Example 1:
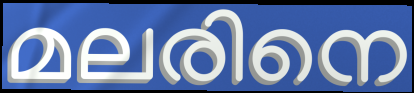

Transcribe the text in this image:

മലരിനെ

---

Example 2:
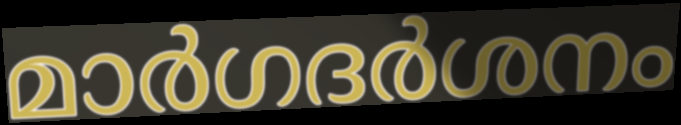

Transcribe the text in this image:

മാർഗദർശനം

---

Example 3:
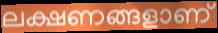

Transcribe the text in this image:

ലക്ഷണങ്ങളാണ്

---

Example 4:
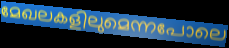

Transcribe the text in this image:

മേഖലകളിലുമെന്നപോലെ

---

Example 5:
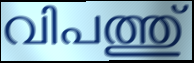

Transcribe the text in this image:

വിപത്തു്